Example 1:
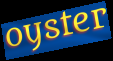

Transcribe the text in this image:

oyster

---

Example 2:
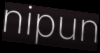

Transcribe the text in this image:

nipun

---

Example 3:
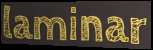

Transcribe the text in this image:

laminar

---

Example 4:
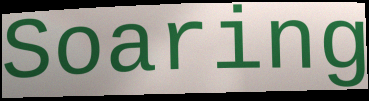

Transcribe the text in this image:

Soaring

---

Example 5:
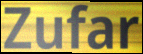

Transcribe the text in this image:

Zufar